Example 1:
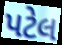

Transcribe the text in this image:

પટેલ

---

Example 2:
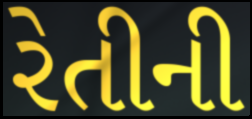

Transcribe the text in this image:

રેતીની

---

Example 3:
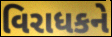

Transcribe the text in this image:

વિરાધકને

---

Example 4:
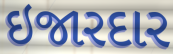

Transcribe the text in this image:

ઇજારદાર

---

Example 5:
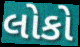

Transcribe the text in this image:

લોકો